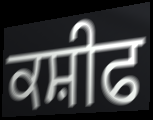
ਕਸ਼ੀਫ